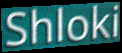
Shloki